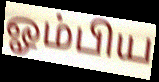
ஓம்பிய